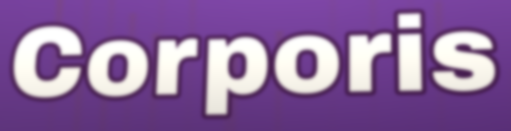
Corporis